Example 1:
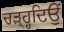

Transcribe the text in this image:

ਚੜ੍ਹ੍ਹਦਿਉਂ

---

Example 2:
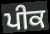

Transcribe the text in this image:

ਪੀਕ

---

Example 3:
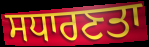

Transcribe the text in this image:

ਸਧਾਰਣਤਾ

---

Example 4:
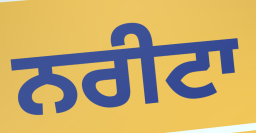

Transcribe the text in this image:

ਨਰੀਟਾ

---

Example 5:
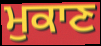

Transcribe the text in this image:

ਮੁਕਾਣ